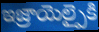
ఇజ్రాయెల్పైకి